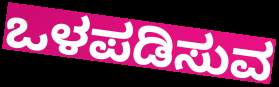
ಒಳಪಡಿಸುವ